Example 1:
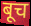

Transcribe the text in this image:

बूच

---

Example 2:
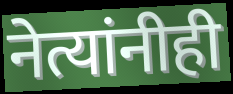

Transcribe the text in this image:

नेत्यांनीही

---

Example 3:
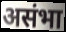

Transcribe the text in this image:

असंभा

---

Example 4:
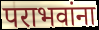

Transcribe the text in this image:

पराभवांना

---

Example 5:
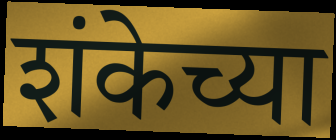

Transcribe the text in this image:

शंकेच्या